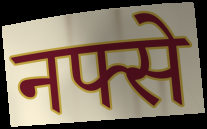
नफ्से